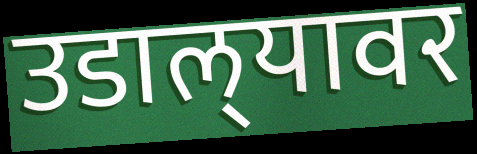
उडाल्यावर